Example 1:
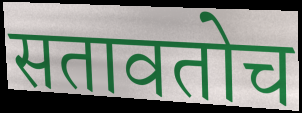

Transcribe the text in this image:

सतावतोच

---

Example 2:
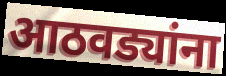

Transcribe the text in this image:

आठवड्यांना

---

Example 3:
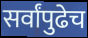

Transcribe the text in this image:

सर्वांपुढेच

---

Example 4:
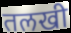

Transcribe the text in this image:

तलखी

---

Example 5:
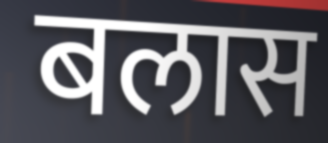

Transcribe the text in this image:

बलास